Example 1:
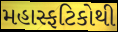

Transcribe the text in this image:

મહાસ્ફટિકોથી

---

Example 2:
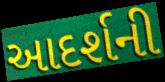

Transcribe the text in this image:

આદર્શની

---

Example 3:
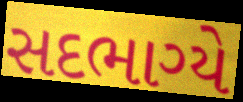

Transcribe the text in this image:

સદભાગ્યે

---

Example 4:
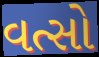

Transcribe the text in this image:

વત્સો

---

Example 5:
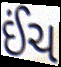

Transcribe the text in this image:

ઈંચ